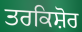
ਤਰਕਿਸ਼ੋਰ